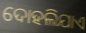
ଦୋହଲିଯାଏ